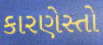
કારણેસ્તો